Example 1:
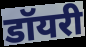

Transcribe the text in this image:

डॉयरी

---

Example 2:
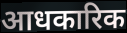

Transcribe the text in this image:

आधकारिक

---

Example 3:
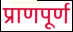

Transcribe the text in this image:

प्राणपूर्ण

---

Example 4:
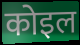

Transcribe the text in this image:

कोइल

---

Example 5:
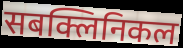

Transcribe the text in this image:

सबक्लिनिकल